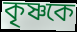
কৃষ্ণকে